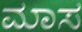
ಮಾಸ